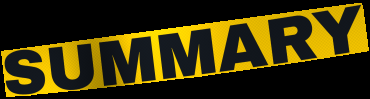
SUMMARY